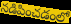
నడిపించడంలో